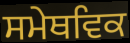
ਸਮੇਥਵਿਕ